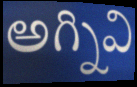
అగ్నివి